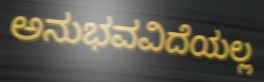
ಅನುಭವವಿದೆಯಲ್ಲ